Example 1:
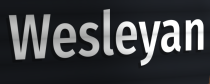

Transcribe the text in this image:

Wesleyan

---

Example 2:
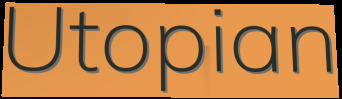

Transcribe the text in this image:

Utopian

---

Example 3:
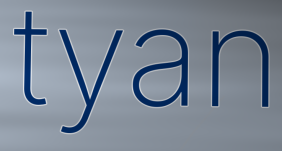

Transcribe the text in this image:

tyan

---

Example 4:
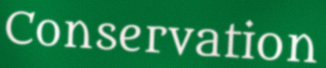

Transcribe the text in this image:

Conservation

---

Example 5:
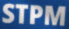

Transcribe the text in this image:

STPM